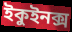
ইকুইনক্স